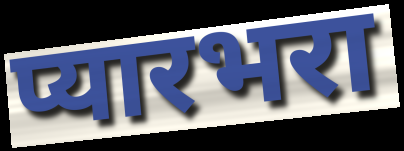
प्यारभरा